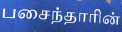
பசைந்தாரின்